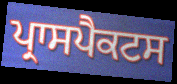
ਪ੍ਰਾਸਪੈਕਟਸ